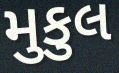
મુકુલ